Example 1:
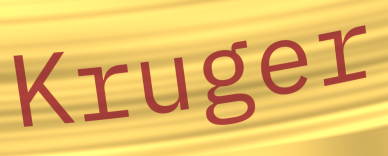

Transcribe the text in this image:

Kruger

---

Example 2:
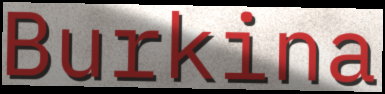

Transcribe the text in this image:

Burkina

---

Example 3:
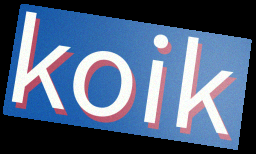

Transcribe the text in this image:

koik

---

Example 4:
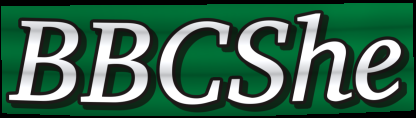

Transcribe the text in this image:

BBCShe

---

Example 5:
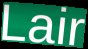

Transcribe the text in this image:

Lair